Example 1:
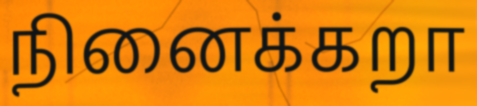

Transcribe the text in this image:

நினைக்கறா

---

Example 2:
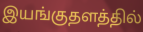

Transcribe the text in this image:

இயங்குதளத்தில்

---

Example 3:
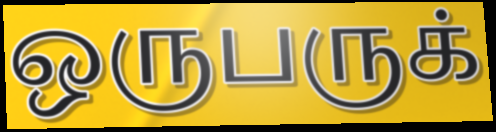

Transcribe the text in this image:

ஒருபருக்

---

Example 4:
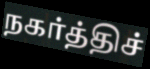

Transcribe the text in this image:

நகர்த்திச்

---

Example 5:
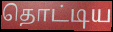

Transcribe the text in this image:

தொட்டிய